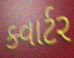
ક્વાર્ટર